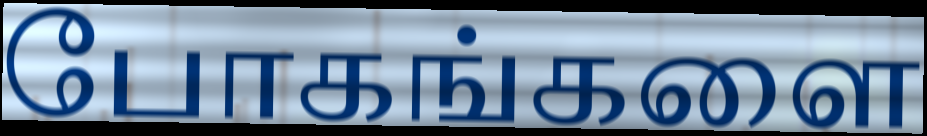
போகங்களை